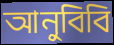
আনুবিবি